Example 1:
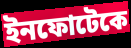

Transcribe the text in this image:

ইনফোটেকে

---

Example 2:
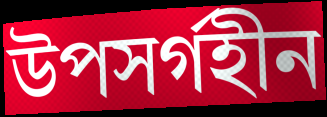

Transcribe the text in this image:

উপসর্গহীন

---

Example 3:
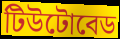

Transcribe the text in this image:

টিউটোবেড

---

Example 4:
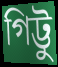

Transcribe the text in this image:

গিট্টু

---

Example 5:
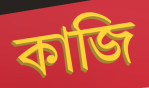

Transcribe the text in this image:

কাজি